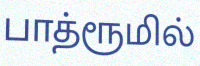
பாத்ரூமில்